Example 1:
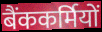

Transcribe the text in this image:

बैंककर्मियों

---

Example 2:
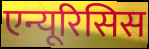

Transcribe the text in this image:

एन्यूरिसिस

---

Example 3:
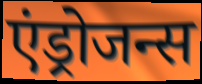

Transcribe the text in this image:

एंड्रोजन्स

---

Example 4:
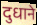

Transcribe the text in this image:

दुधाने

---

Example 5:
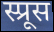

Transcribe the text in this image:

स्प्रूस